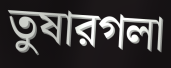
তুষারগলা